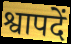
श्वापदें